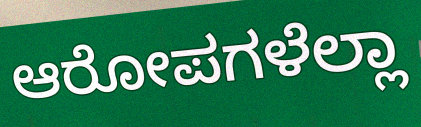
ಆರೋಪಗಳೆಲ್ಲಾ